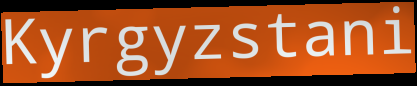
Kyrgyzstani